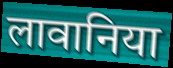
लावानिया